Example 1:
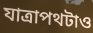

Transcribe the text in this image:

যাত্রাপথটাও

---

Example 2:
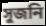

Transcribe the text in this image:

সুজনি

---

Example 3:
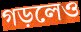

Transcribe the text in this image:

গড়লেও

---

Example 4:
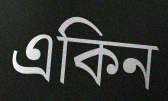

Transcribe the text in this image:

একিন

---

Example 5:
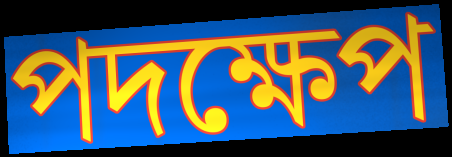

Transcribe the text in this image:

পদক্ষেপ